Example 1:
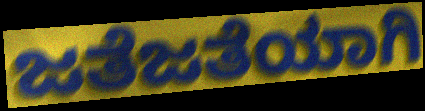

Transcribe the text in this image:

ಜತೆಜತೆಯಾಗಿ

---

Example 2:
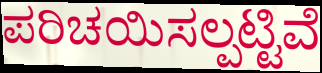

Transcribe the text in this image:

ಪರಿಚಯಿಸಲ್ಪಟ್ಟಿವೆ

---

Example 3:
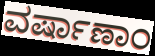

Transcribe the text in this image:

ವರ್ಷಾಣಾಂ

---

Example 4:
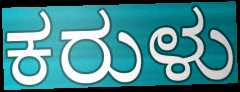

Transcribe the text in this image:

ಕರುಳು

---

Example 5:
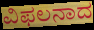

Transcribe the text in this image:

ವಿಫಲನಾದ